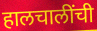
हालचालींची